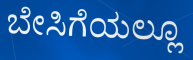
ಬೇಸಿಗೆಯಲ್ಲೂ